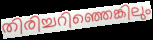
തിരിച്ചറിഞ്ഞെങ്കിലും